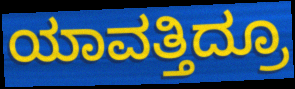
ಯಾವತ್ತಿದ್ರೂ